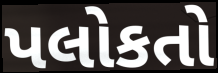
પલોકતો